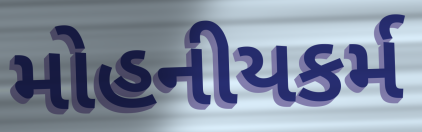
મોહનીયકર્મ